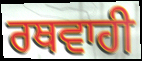
ਰਥਵਾਹੀ